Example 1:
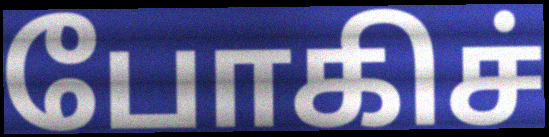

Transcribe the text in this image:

போகிச்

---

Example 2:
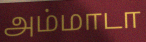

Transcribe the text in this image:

அம்மாடா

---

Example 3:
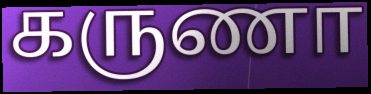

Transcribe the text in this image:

கருணா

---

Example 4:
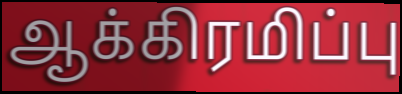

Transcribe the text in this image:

ஆக்கிரமிப்பு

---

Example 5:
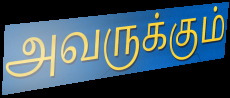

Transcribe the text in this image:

அவருக்கும்